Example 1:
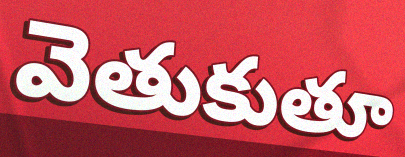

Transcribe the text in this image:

వెతుకుతూ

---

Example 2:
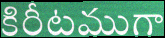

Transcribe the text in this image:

కిరీటముగా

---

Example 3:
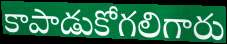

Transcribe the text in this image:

కాపాడుకోగలిగారు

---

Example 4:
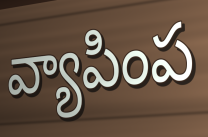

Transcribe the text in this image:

వ్యాపింప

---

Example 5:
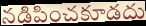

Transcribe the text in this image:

నడిపించకూడదు